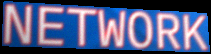
NETWORK